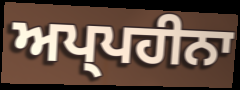
ਅਪ੍ਪਹੀਨਾ